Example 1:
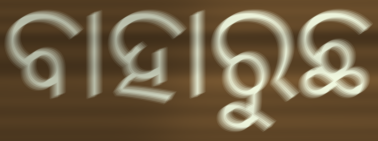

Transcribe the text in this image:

ବାହାରୁଛ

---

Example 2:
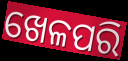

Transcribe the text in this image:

ଖେଳପରି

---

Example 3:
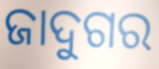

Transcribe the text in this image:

ଜାଦୁଗର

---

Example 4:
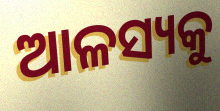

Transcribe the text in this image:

ଆଳସ୍ୟକୁ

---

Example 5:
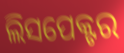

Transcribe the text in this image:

ଲିସପେକ୍ଟର